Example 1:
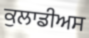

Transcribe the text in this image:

ਕੁਲਾਡੀਅਸ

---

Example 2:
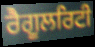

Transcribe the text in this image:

ਰੈਗੂਲਰਿਟੀ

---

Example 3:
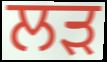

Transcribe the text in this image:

ਲੜ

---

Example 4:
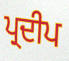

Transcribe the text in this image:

ਪ੍ਰਦੀਪ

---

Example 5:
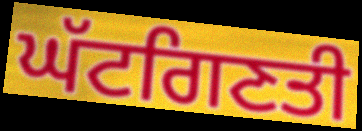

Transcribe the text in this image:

ਘੱਟਗਿਣਤੀ